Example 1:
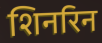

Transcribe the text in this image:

शिनरिन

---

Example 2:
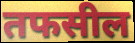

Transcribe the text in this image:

तफसील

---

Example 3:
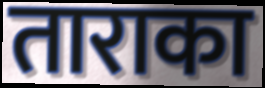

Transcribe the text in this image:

ताराका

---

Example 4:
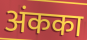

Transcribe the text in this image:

अंकका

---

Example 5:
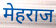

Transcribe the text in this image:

मेहराज